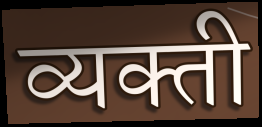
व्यक्‍ती